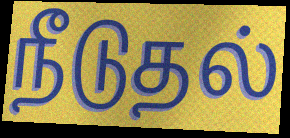
நீடுதல்